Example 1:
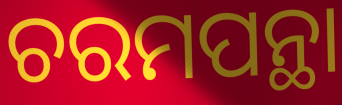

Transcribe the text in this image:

ଚରମପନ୍ଥା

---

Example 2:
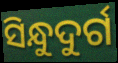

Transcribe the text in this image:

ସିନ୍ଧୁଦୁର୍ଗ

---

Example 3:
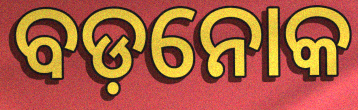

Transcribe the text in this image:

ବଡ଼ନୋକ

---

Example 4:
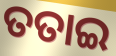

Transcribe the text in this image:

ତତାଇ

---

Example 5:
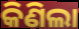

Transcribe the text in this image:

କିଣିଲା